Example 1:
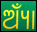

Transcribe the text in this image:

ଅ୍ୟାଁ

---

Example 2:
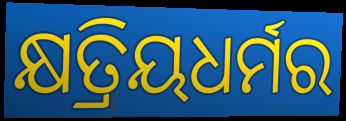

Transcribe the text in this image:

କ୍ଷତ୍ରିୟଧର୍ମର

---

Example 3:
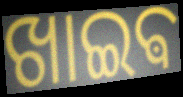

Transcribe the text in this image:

ଖାଇଵ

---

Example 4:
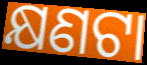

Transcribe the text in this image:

କ୍ଷଣଟା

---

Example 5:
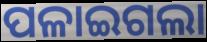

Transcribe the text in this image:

ପଳାଇଗଲା